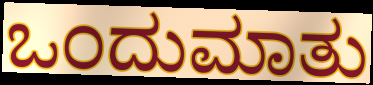
ಒಂದುಮಾತು